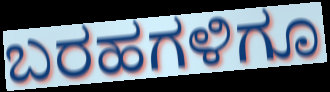
ಬರಹಗಳಿಗೂ